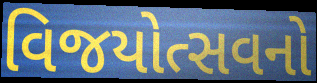
વિજયોત્સવનો